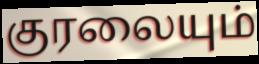
குரலையும்